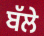
ਬੱਲੇ